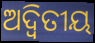
ଅଦ୍ଵିତୀୟ